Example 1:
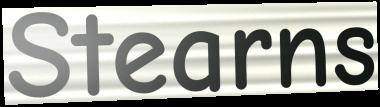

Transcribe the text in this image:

Stearns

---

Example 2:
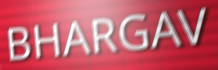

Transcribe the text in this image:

BHARGAV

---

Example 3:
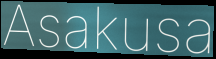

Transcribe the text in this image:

Asakusa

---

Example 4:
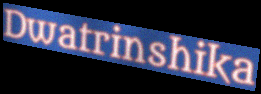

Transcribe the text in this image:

Dwatrinshika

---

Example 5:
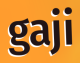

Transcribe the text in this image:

gaji